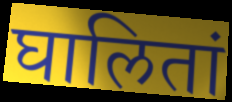
घालितां